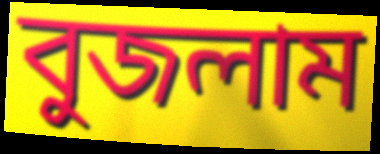
বুজলাম